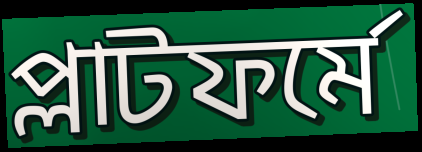
প্লাটফর্মে